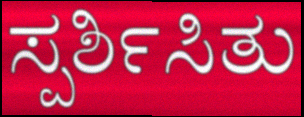
ಸ್ಪರ್ಶಿಸಿತು